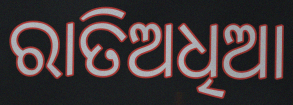
ରାତିଅଧିଆ